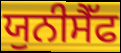
ਯੁਨੀਸੈੱਫ